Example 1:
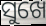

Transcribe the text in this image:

ସୁଖେ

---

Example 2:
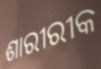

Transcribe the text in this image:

ଶାରୀରୀକ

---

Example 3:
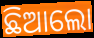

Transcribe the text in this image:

ଛିଆଲୋ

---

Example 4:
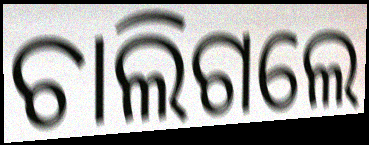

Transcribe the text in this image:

ଚାଲିଗଲେ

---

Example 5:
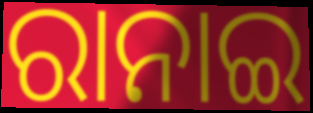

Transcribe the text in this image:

ରାନାଇ